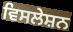
ਵਿਸਲੇਸ਼ਨ